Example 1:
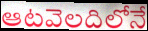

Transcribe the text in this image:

ఆటవెలదిలోనే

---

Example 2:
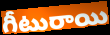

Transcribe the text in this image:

గీటురాయి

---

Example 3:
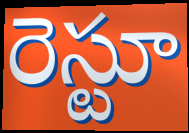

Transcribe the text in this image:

రెస్టూ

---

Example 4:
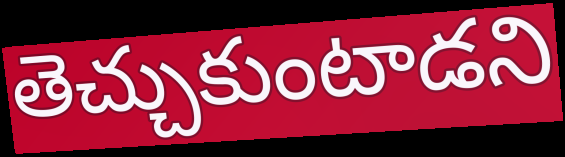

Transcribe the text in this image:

తెచ్చుకుంటాడని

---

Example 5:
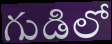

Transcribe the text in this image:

గుడిలో